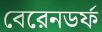
বেরেনডর্ফ